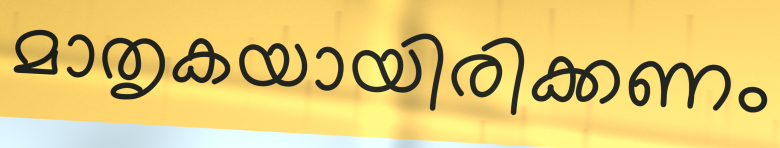
മാതൃകയായിരിക്കണം